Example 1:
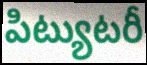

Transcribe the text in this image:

పిట్యుటరీ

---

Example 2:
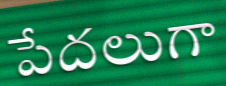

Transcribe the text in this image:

పేదలుగా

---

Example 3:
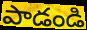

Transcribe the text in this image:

పాడండి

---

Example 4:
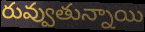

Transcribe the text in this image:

రువ్వుతున్నాయి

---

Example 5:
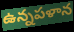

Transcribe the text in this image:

ఉన్నపళాన